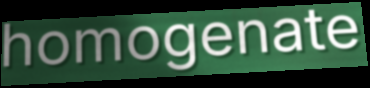
homogenate